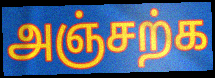
அஞ்சற்க